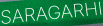
SARAGARHI